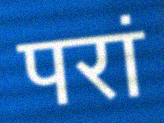
परां